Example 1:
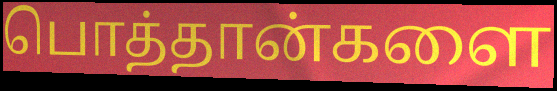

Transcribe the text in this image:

பொத்தான்களை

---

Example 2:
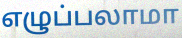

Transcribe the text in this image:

எழுப்பலாமா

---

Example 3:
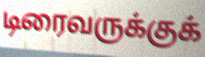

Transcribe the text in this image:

டிரைவருக்குக்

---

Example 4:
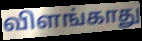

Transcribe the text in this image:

விளங்காது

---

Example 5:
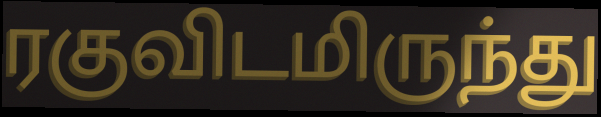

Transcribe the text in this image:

ரகுவிடமிருந்து